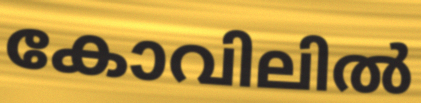
കോവിലിൽ